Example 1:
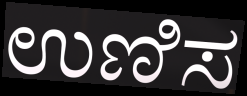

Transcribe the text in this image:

ಉಣಿಸ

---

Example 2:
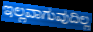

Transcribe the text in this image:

ಇಲ್ಲವಾಗುವುದಿಲ್ಲ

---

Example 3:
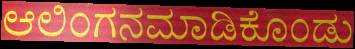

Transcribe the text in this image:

ಆಲಿಂಗನಮಾಡಿಕೊಂಡು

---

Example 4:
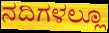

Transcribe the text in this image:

ನದಿಗಳಲ್ಲೂ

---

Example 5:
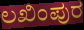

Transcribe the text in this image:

ಲಖಿಂಪುರ